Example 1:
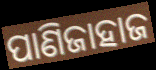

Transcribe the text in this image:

ପାଣିଜାହାଜ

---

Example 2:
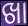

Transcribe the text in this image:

ଖା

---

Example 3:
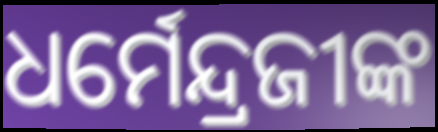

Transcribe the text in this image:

ଧର୍ମେନ୍ଦ୍ରଜୀଙ୍କ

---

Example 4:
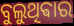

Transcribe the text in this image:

ବୁଲୁଥିଵାର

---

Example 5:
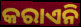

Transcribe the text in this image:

କରାଏନି